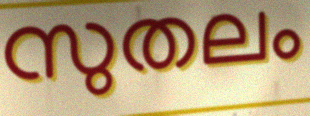
സുതലം